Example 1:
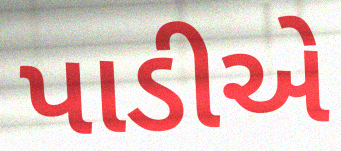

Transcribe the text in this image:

પાડીએ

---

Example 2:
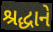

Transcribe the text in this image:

શ્રદ્ધાને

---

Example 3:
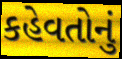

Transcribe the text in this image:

કહેવતોનું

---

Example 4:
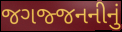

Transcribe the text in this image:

જગજ્જનનીનું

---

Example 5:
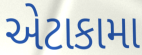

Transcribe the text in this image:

એટાકામા